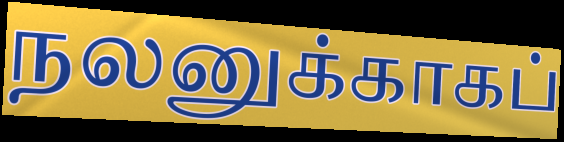
நலனுக்காகப்